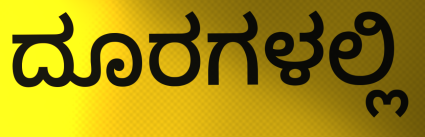
ದೂರಗಳಲ್ಲಿ